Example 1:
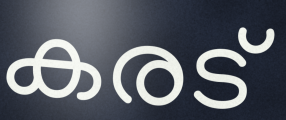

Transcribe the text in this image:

കരട്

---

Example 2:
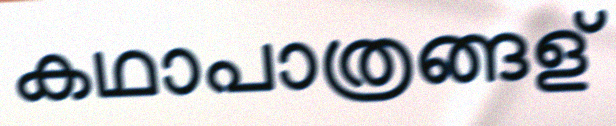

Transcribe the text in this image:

കഥാപാത്രങ്ങള്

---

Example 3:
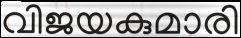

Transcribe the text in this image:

വിജയകുമാരി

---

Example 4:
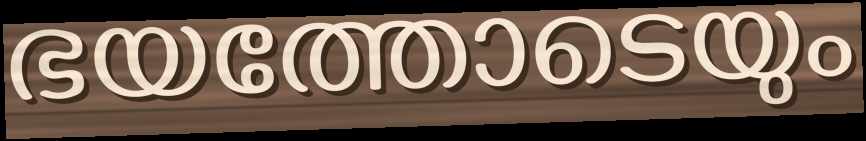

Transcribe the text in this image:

ഭയത്തോടെയും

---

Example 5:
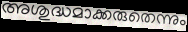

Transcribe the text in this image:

അശുദ്ധമാക്കരുതെന്നും